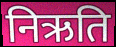
निऋति